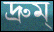
দ্রুম্